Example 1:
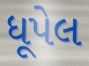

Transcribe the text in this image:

ધૂપેલ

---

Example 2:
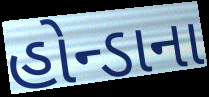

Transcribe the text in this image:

હોન્ડાના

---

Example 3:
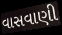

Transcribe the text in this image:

વાસવાણી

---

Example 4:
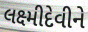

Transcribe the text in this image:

લક્ષ્મીદેવીને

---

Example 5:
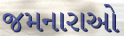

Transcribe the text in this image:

જમનારાઓ